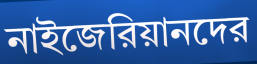
নাইজেরিয়ানদের